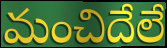
మంచిదేలే